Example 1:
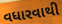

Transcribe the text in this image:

વધારવાથી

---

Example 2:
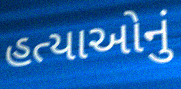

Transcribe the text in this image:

હત્યાઓનું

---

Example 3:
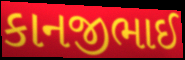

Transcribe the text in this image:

કાનજીભાઈ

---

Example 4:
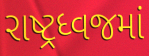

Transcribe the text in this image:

રાષ્ટ્રધ્વજમાં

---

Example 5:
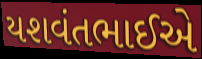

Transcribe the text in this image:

યશવંતભાઈએ